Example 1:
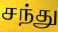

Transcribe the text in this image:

சந்து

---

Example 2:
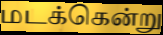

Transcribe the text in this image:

மடக்கென்று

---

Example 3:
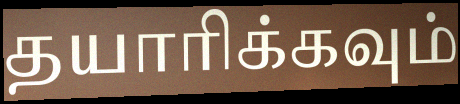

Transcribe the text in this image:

தயாரிக்கவும்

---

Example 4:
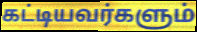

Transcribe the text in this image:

கட்டியவர்களும்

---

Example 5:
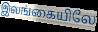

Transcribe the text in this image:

இலங்கையிலே